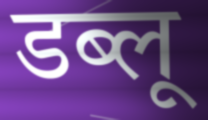
डब्लू